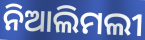
ନିଆଲିମଲୀ